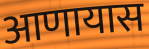
आणायास